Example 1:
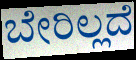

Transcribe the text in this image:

ಬೇರಿಲ್ಲದೆ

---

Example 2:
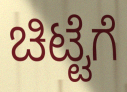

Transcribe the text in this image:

ಚಿಟ್ಟೆಗೆ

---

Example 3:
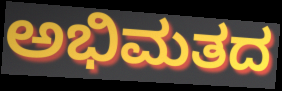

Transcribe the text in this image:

ಅಭಿಮತದ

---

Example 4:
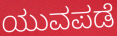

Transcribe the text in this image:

ಯುವಪಡೆ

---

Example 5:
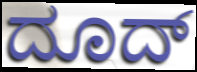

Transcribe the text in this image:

ದೂದ್